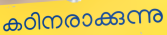
കഠിനരാക്കുന്നു